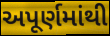
અપૂર્ણમાંથી